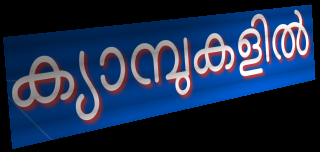
ക്യാമ്പുകളിൽ